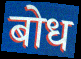
बोध